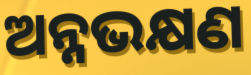
ଅନ୍ନଭକ୍ଷଣ